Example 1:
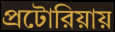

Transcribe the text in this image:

প্রটোরিয়ায়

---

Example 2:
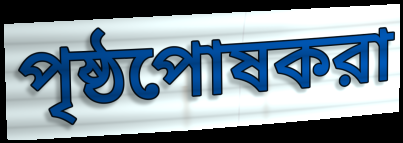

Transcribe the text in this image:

পৃষ্ঠপোষকরা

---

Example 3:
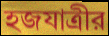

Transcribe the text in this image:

হজযাত্রীর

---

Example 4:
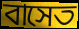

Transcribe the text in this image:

বাসেত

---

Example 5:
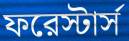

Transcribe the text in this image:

ফরেস্টার্স